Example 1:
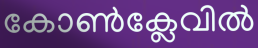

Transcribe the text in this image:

കോൺക്ലേവിൽ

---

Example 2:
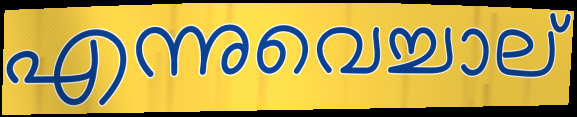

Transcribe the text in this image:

എന്നുവെച്ചാല്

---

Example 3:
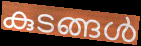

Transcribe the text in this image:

കുടങ്ങൾ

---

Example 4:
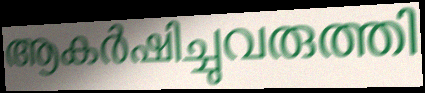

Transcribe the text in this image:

ആകർഷിച്ചുവരുത്തി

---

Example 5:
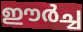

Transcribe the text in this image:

ഈർച്ച